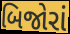
બિજોરાં